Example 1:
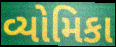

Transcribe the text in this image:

વ્યોમિકા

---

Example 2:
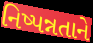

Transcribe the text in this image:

નિષ્પન્નતાને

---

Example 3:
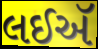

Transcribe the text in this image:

લઈઍ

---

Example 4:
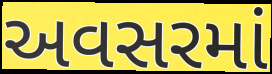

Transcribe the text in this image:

અવસરમાં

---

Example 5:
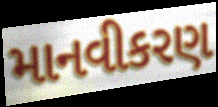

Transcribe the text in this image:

માનવીકરણ